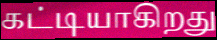
கட்டியாகிறது